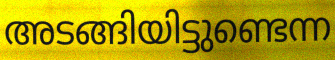
അടങ്ങിയിട്ടുണ്ടെന്ന